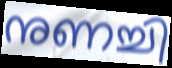
നുണച്ചി